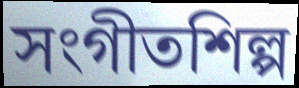
সংগীতশিল্প